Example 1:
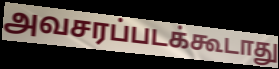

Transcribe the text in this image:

அவசரப்படக்கூடாது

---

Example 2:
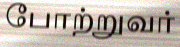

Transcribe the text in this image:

போற்றுவர்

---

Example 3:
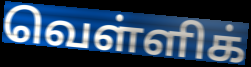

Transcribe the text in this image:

வெள்ளிக்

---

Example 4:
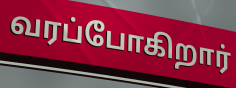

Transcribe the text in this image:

வரப்போகிறார்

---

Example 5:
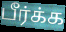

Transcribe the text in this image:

பீர்க்க